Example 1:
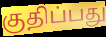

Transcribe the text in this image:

குதிப்பது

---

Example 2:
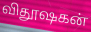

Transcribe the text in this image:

விதூஷகன்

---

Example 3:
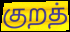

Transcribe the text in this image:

குறத்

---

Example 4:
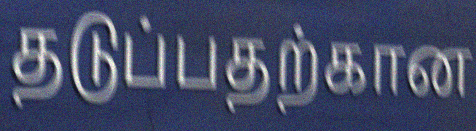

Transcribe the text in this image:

தடுப்பதற்கான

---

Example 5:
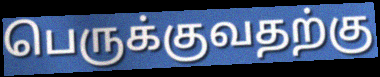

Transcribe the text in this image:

பெருக்குவதற்கு